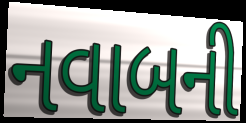
નવાબની